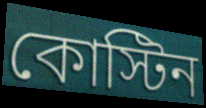
কোস্টিন